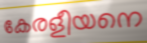
കേരളീയനെ